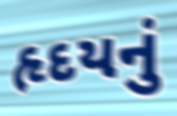
હૃદયનું